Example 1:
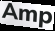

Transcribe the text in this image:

Amp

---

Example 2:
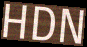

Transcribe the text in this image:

HDN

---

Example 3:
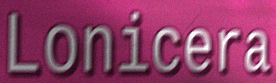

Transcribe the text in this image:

Lonicera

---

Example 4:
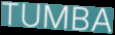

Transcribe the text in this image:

TUMBA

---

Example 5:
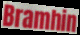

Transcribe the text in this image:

Bramhin